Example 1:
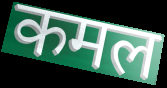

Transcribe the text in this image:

कमल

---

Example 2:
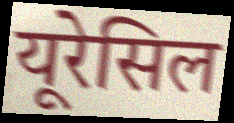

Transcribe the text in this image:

यूरेसिल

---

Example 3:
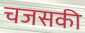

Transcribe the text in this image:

चजसकी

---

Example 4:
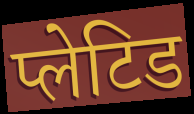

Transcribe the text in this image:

प्लेटिड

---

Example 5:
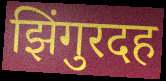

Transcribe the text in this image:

झिंगुरदह